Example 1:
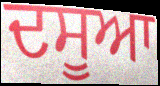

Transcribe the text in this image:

ਦਸੂਆ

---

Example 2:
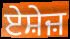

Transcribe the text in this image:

ਏਸ਼ੇਜ਼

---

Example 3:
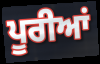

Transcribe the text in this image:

ਪੂਰੀਆਂ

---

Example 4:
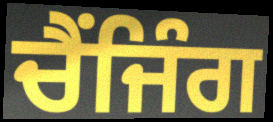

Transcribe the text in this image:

ਚੈਂਜਿੰਗ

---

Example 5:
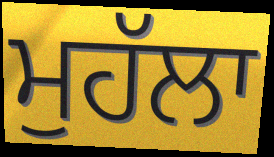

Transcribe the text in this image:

ਮੁਹੱਲਾ